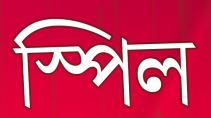
স্পিল